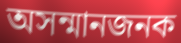
অসন্মানজনক